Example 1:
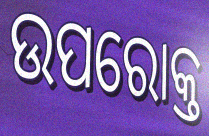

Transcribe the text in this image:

ଉପରୋକ୍ତ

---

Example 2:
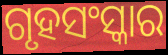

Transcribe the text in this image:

ଗୃହସଂସ୍କାର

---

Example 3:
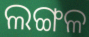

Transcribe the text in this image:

ଲଙ୍ଗଳ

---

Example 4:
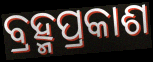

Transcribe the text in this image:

ବ୍ରହ୍ମପ୍ରକାଶ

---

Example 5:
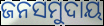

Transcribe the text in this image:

ଜନସମୁଦାୟ